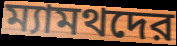
ম্যামথদের